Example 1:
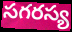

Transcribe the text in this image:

సగరస్య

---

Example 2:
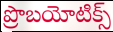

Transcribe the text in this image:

ప్రొబయోటిక్స్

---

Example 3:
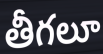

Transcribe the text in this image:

తీగలూ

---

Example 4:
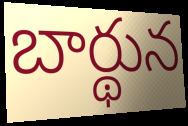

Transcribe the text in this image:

బార్థున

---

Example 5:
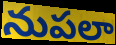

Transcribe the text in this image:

నుపలా